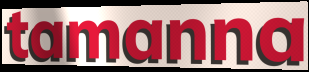
tamanna